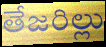
తేజరిల్లు